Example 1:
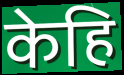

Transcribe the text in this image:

केहि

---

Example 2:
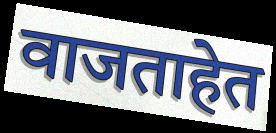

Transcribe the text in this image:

वाजताहेत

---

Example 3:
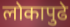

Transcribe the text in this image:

लोकापुढे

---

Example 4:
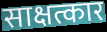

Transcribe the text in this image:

साक्षत्कार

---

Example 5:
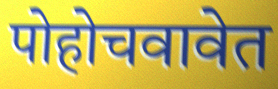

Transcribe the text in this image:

पोहोचवावेत